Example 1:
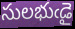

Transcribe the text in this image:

సులభుఁడై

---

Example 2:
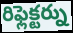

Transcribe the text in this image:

రిఫ్లెక్టర్ను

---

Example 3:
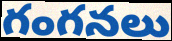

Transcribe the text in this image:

గంగనలు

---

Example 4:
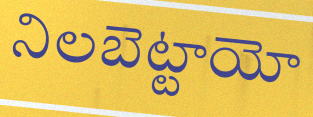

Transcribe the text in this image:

నిలబెట్టాయో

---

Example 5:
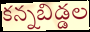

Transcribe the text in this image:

కన్నబిడ్డల